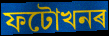
ফটোখনৰ